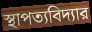
স্থাপত্যবিদ্যার